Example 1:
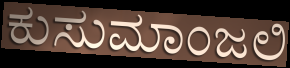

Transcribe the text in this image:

ಕುಸುಮಾಂಜಲಿ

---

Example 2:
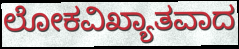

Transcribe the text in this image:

ಲೋಕವಿಖ್ಯಾತವಾದ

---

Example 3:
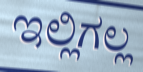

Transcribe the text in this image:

ಇಲ್ಲಿಗಲ್ಲ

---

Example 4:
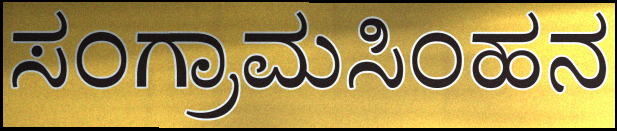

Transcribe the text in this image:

ಸಂಗ್ರಾಮಸಿಂಹನ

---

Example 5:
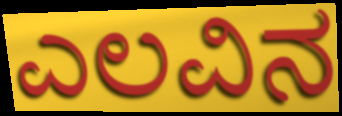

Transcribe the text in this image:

ಎಲವಿನ